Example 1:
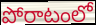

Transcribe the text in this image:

పోరాటంలో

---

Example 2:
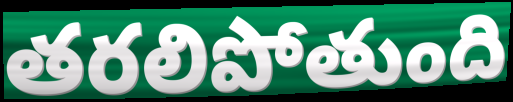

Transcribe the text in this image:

తరలిపోతుంది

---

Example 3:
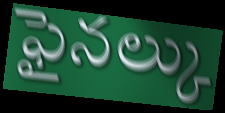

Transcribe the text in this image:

ఫైనల్కు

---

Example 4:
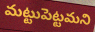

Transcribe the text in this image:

మట్టుపెట్టమని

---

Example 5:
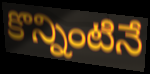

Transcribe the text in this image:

కొన్నింటినే